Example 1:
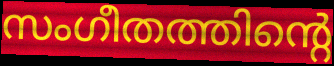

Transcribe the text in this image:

സംഗീതത്തിന്റെ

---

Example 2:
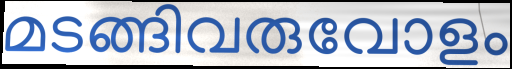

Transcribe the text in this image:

മടങ്ങിവരുവോളം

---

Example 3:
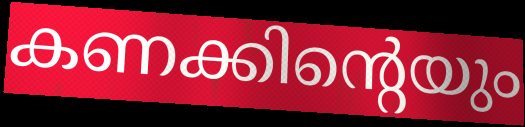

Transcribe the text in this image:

കണക്കിന്റെയും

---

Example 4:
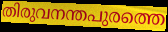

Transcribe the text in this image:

തിരുവനന്തപുരത്തെ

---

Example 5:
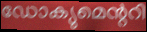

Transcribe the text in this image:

ഡോക്യുമെന്ററി